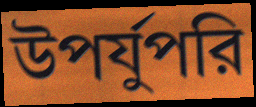
উপর্যুপরি